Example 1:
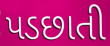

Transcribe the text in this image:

પડછાતી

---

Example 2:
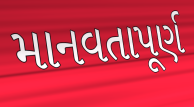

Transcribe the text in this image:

માનવતાપૂર્ણ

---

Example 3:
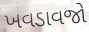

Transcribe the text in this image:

ખવડાવજો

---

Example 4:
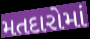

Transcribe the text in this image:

મતદારોમાં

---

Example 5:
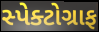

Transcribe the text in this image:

સ્પેક્ટોગ્રાફ